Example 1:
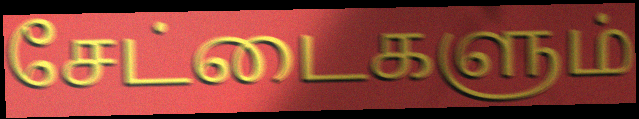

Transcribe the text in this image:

சேட்டைகளும்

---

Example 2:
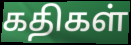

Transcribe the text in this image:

கதிகள்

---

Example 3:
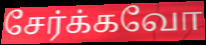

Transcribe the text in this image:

சேர்க்கவோ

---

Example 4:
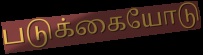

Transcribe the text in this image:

படுக்கையோடு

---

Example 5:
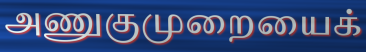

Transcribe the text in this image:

அணுகுமுறையைக்